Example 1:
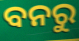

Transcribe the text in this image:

ବନରୁ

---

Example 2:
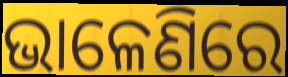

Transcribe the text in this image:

ଭାଳେଣିରେ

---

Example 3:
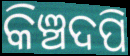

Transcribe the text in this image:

କିଞ୍ଚଦପି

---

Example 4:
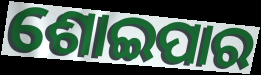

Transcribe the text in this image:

ଶୋଇପାର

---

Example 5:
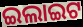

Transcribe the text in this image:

ଇଲାଇଟ